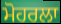
ਮੋਹਰਲਾ